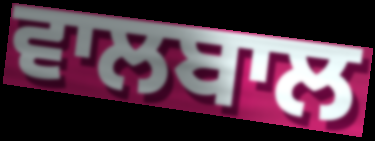
ਵਾਲਬਾਲ